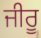
ਜੀਰੂ